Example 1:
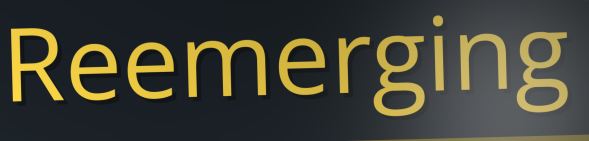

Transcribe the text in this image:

Reemerging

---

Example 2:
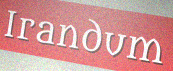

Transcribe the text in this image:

Irandum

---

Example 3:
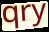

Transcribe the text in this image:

qry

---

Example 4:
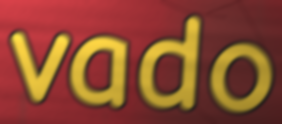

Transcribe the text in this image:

vado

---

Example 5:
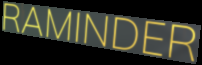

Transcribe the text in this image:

RAMINDER